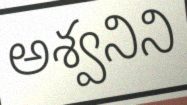
అశ్వనిని